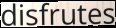
disfrutes